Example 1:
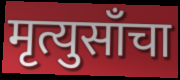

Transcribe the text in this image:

मृत्युसाँचा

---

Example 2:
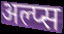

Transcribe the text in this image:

अल्प्स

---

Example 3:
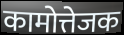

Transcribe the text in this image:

कामोत्तेजक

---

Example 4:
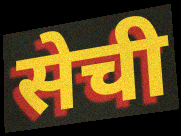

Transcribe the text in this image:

सेची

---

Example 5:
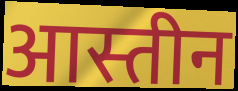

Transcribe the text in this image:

आस्तीन